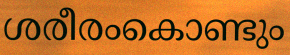
ശരീരംകൊണ്ടും